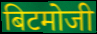
बिटमोजी